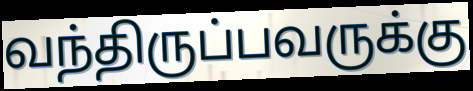
வந்திருப்பவருக்கு